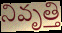
నివృత్తి